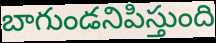
బాగుండనిపిస్తుంది